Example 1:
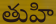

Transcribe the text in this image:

తుహి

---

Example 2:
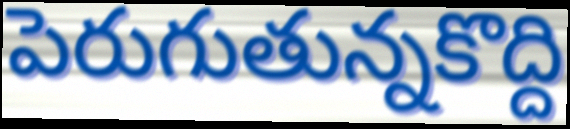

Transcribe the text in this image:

పెరుగుతున్నకొద్ది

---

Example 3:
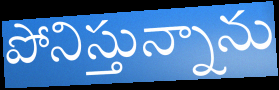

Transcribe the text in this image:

పోనిస్తున్నాను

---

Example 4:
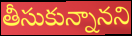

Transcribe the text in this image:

తీసుకున్నానని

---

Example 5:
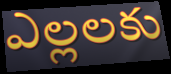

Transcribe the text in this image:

ఎల్లలకు